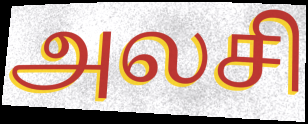
அலசி